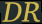
DR